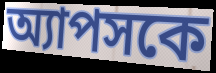
অ্যাপসকে